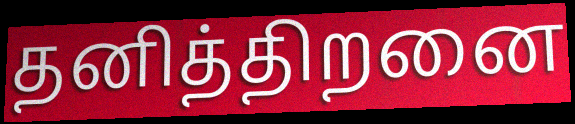
தனித்திறனை